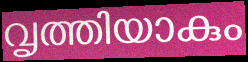
വൃത്തിയാകും